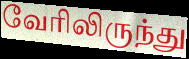
வேரிலிருந்து